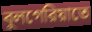
বুলগেরিয়াতে